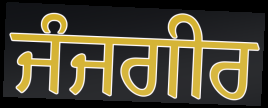
ਜੰਜਗੀਰ